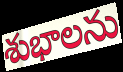
శుభాలను